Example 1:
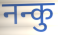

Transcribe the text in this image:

नन्कु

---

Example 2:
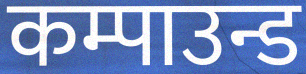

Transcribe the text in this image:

कम्पाउन्ड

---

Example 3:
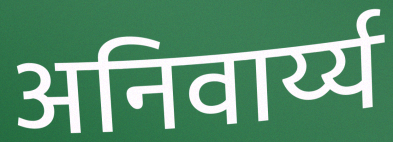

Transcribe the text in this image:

अनिवार्य्य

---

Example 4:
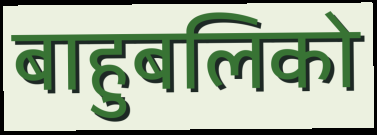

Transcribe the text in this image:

बाहुबलिको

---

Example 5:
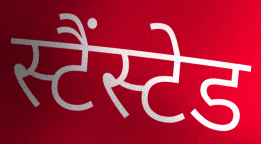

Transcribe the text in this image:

स्टैंस्टेड